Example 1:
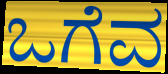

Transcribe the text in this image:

ಒಗೆವ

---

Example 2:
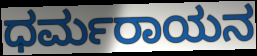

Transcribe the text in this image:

ಧರ್ಮರಾಯನ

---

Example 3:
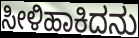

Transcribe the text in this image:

ಸೀಳಿಹಾಕಿದನು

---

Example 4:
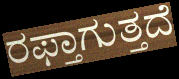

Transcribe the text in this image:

ರಫ್ತಾಗುತ್ತದೆ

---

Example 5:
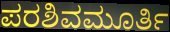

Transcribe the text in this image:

ಪರಶಿವಮೂರ್ತಿ